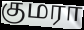
குமரா